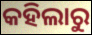
କହିଲାରୁ